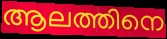
ആലത്തിനെ